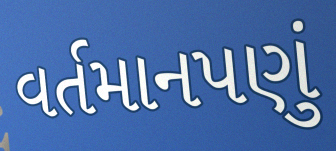
વર્તમાનપણું